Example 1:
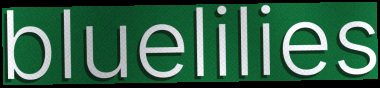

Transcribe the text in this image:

bluelilies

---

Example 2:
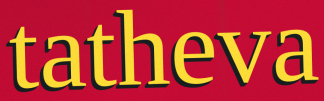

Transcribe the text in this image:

tatheva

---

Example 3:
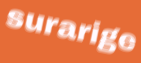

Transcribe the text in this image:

surarige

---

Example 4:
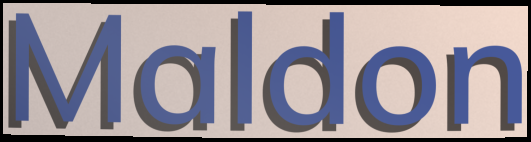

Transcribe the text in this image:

Maldon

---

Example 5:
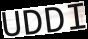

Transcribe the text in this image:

UDDI